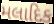
મલાદિક